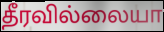
தீரவில்லையா